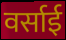
वर्साई